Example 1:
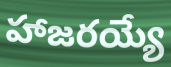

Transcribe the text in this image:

హాజరయ్యే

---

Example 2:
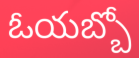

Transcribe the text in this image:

ఓయబ్బో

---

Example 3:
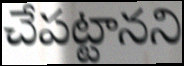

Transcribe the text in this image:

చేపట్టానని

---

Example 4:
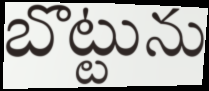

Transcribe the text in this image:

బొట్టును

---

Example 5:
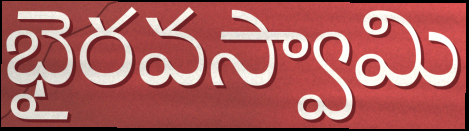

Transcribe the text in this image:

భైరవస్వామి